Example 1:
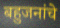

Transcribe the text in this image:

बहुजनांचे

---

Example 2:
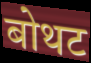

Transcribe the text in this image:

बोथट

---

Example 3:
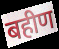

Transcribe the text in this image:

बहीण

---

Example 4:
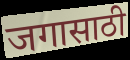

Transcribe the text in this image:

जगासाठी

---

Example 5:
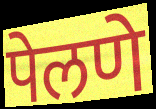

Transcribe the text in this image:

पेलणे